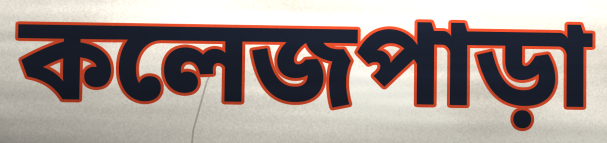
কলেজপাড়া